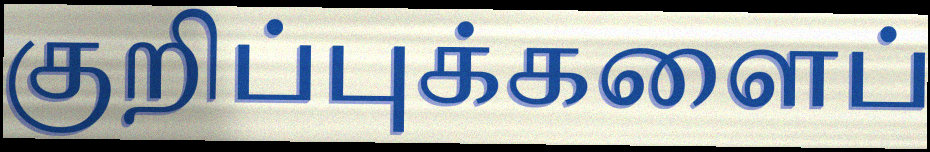
குறிப்புக்களைப்